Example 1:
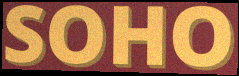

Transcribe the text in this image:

SOHO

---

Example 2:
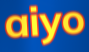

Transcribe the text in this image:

aiyo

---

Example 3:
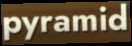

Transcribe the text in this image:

pyramid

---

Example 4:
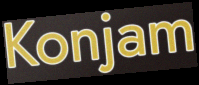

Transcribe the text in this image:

Konjam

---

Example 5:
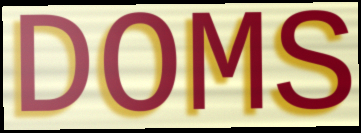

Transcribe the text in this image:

DOMS